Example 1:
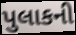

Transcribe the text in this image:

પુલાકની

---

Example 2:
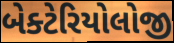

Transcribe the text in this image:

બેક્ટેરિયોલોજી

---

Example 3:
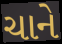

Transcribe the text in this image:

ચાને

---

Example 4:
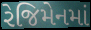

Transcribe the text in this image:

રેજિમેનમાં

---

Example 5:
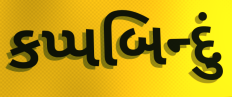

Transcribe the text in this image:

કપ્પબિન્દું